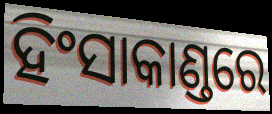
ହିଂସାକାଣ୍ଡରେ